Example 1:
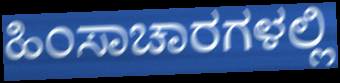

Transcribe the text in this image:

ಹಿಂಸಾಚಾರಗಳಲ್ಲಿ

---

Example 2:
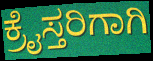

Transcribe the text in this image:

ಕ್ರೈಸ್ತರಿಗಾಗಿ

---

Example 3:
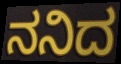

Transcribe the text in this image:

ನನಿದ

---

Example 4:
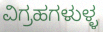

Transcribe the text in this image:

ವಿಗ್ರಹಗಳುಳ್ಳ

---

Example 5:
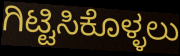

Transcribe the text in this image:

ಗಿಟ್ಟಿಸಿಕೊಳ್ಳಲು